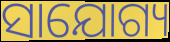
ସାଯୋଗ୍ୟ